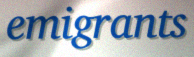
emigrants